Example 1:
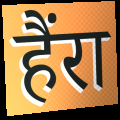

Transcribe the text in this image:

हैंरा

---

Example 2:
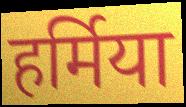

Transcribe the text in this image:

हर्मिया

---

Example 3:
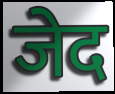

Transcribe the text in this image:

जेद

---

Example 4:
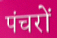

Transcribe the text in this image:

पंचरों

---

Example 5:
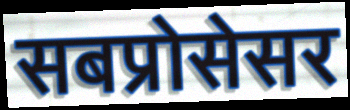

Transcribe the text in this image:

सबप्रोसेसर